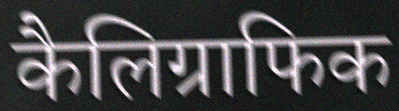
कैलिग्राफिक